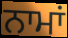
ਨਾਮਾਂ